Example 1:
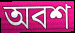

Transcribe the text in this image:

অবশ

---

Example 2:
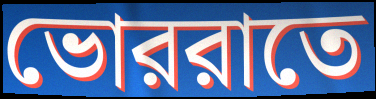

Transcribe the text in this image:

ভোররাতে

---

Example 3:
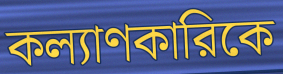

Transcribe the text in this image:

কল্যাণকারিকে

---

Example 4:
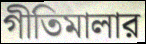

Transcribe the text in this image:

গীতিমালার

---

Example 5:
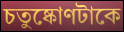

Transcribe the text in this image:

চতুষ্কোণটাকে